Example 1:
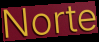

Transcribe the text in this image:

Norte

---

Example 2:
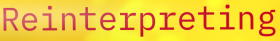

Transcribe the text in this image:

Reinterpreting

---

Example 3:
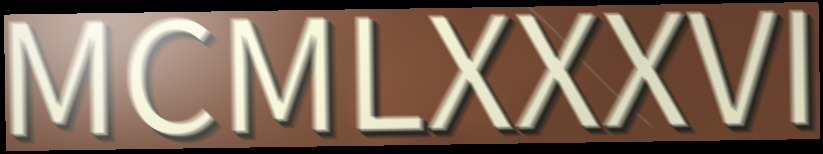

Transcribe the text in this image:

MCMLXXXVI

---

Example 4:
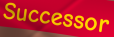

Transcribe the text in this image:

Successor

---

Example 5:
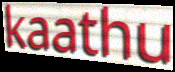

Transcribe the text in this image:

kaathu